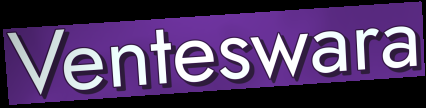
Venteswara